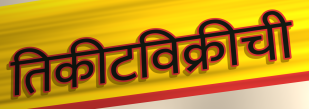
तिकीटविक्रीची